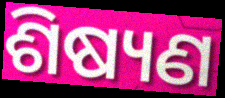
ଶିଷ୍ୟଣ